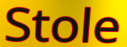
Stole